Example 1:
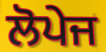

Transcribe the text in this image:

ਲੋਪੇਜ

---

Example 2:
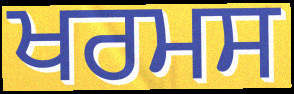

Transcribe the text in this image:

ਖਰਮਸ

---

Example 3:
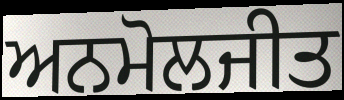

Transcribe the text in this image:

ਅਨਮੋਲਜੀਤ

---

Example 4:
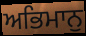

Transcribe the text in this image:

ਅਭਿਮਾਨੁ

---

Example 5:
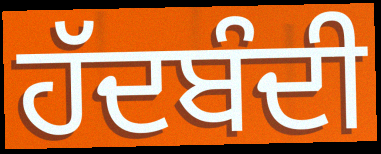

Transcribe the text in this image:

ਹੱਦਬੰਦੀ